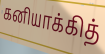
கனியாக்கித்